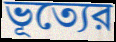
ভূত্যের